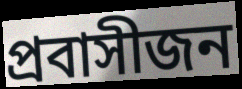
প্রবাসীজন